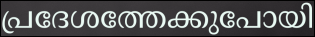
പ്രദേശത്തേക്കുപോയി